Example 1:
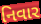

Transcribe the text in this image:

નિવાર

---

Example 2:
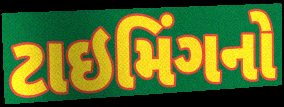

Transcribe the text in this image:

ટાઇમિંગનો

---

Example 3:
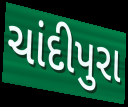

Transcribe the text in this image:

ચાંદીપુરા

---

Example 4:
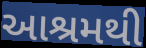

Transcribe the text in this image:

આશ્રમથી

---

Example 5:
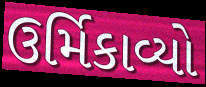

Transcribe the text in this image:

ઉર્મિકાવ્યો